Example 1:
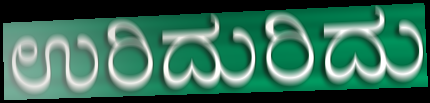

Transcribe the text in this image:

ಉರಿದುರಿದು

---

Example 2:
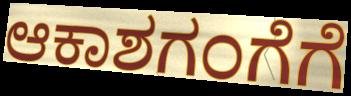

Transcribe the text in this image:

ಆಕಾಶಗಂಗೆಗೆ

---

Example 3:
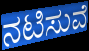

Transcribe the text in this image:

ನಟಿಸುವೆ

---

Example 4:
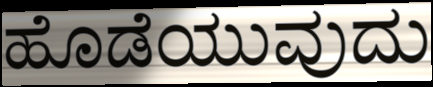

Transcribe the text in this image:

ಹೊಡೆಯುವುದು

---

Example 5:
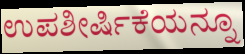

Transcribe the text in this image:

ಉಪಶೀರ್ಷಿಕೆಯನ್ನೂ